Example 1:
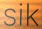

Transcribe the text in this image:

sik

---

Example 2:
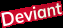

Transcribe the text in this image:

Deviant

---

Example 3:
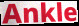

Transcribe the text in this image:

Ankle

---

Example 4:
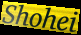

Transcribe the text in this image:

Shohei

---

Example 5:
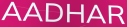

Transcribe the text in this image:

AADHAR